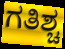
ಗತಿಶ್ಚ